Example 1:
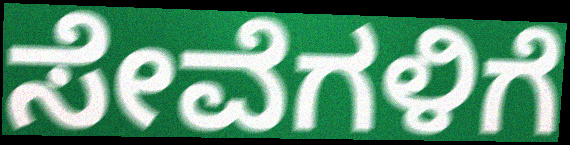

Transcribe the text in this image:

ಸೇವೆಗಳಿಗೆ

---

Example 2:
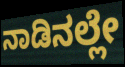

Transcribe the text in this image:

ನಾಡಿನಲ್ಲೇ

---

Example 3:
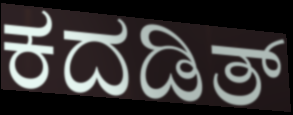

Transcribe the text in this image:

ಕದಡಿತ್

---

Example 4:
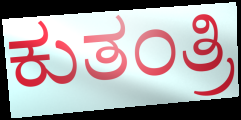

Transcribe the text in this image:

ಕುತಂತ್ರಿ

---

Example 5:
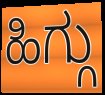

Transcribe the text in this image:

ಹಿಗ್ಗು